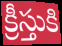
క్రీస్తుకి